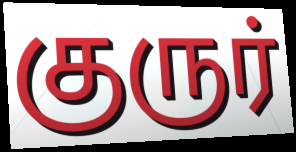
குருர்